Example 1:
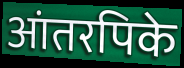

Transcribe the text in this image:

आंतरपिके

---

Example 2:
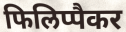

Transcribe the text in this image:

फिलिप्पैकर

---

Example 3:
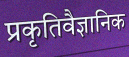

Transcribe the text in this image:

प्रकृतिवैज्ञानिक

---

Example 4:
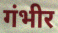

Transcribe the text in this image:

गंभीर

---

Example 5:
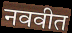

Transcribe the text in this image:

नववीत